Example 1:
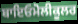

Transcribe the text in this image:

ਬਾਇਓਮੋਲੀਕੂਲਰ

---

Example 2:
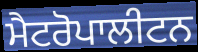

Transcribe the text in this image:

ਮੈਟਰੋਪਾਲੀਟਨ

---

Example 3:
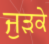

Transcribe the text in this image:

ਜੁੜਕੇ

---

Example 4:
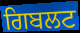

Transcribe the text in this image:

ਗਿਬਲਟ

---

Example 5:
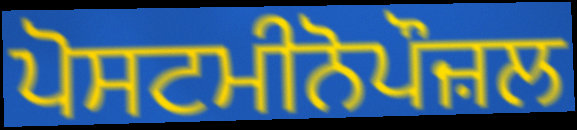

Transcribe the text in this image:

ਪੋਸਟਮੀਨੋਪੌਜ਼ਲ